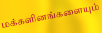
மக்களினங்களையும்